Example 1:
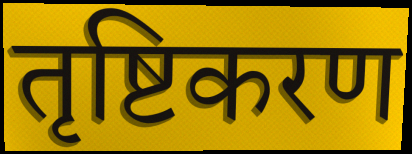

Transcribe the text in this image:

तृष्टिकरण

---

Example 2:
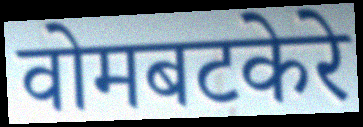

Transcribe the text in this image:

वोमबटकेरे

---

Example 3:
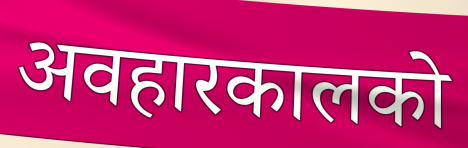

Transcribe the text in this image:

अवहारकालको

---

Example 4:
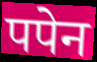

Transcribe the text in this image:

पपेन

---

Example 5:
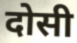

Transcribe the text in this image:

दोसी